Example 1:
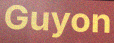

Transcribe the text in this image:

Guyon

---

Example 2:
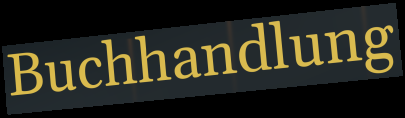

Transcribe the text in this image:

Buchhandlung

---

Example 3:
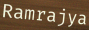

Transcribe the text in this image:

Ramrajya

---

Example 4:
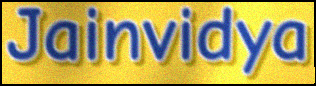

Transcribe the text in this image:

Jainvidya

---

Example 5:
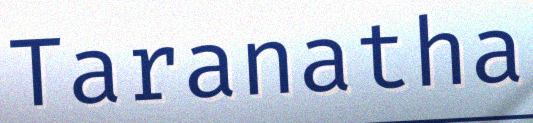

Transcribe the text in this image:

Taranatha